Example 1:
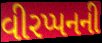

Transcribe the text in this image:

વીરપ્પનની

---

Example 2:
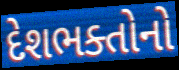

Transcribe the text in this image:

દેશભક્તોનો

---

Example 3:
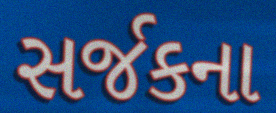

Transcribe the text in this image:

સર્જકના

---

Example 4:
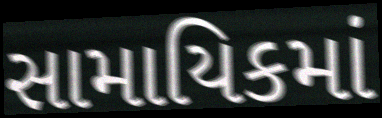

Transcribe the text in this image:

સામાયિકમાં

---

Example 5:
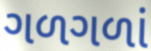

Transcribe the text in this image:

ગળગળાં